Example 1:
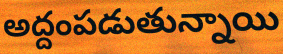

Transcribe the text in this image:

అద్దంపడుతున్నాయి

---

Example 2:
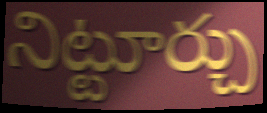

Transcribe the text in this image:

నిట్టూర్చు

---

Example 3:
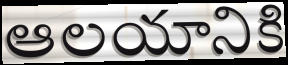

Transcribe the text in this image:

ఆలయానికి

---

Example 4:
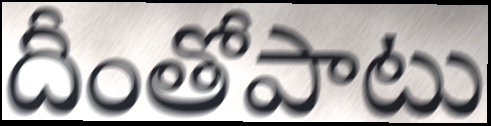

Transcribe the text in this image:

దీంతోపాటు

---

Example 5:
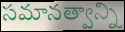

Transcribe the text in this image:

సమానత్వాన్ని